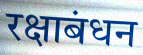
रक्षाबंधन